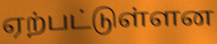
ஏற்பட்டுள்ளன